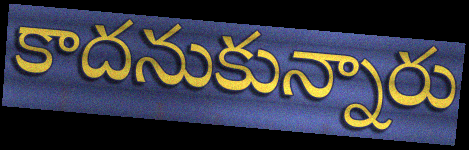
కాదనుకున్నారు